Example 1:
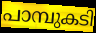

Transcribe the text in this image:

പാമ്പുകടി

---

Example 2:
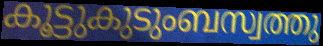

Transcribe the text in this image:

കൂട്ടുകുടുംബസ്വത്തു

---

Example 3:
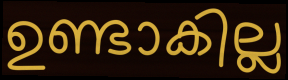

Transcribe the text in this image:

ഉണ്ടാകില്ല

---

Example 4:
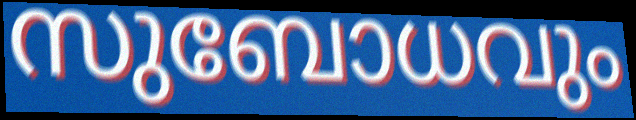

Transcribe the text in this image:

സുബോധവും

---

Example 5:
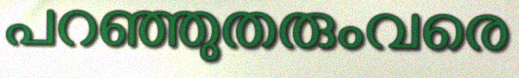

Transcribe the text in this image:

പറഞ്ഞുതരുംവരെ